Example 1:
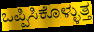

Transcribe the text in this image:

ಒಪ್ಪಿಸಿಕೊಳ್ಳುತ್ತ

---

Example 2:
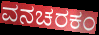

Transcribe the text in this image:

ವನಚರಕಂ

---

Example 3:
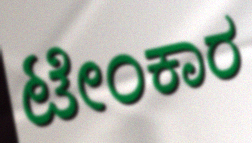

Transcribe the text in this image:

ಟೇಂಕಾರ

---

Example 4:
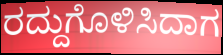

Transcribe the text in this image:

ರದ್ದುಗೊಳಿಸಿದಾಗ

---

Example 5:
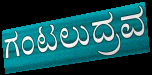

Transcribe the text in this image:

ಗಂಟಲುದ್ರವ